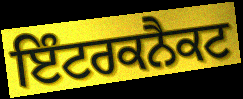
ਇੰਟਰਕਨੈਕਟ